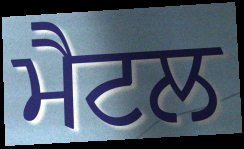
ਮੈਟਲ